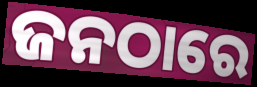
ଜନଠାରେ